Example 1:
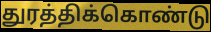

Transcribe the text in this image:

துரத்திக்கொண்டு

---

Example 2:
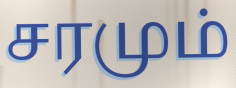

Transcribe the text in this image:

சரமும்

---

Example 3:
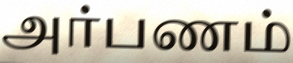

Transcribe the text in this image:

அர்பணம்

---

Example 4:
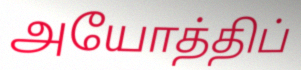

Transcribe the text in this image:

அயோத்திப்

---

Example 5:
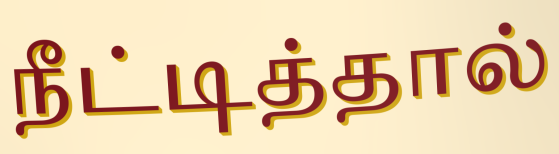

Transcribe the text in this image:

நீட்டித்தால்